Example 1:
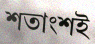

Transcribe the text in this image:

শতাংশই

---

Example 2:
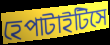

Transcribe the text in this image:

হেপাটাইটিসে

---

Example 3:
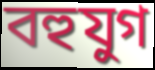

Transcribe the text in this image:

বহুযুগ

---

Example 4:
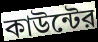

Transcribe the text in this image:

কাউন্টের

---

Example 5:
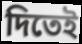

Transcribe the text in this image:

দিতেই